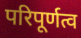
परिपूर्णत्व